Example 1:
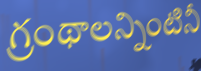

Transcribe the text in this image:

గ్రంథాలన్నింటినీ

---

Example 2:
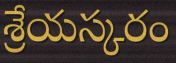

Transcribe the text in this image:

శ్రేయస్కరం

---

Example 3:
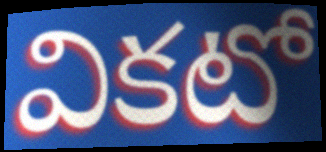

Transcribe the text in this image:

వికటో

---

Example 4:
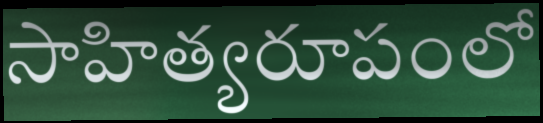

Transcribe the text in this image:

సాహిత్యరూపంలో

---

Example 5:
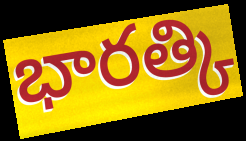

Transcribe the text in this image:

భారత్కి